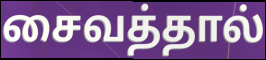
சைவத்தால்